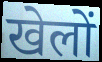
खेलों